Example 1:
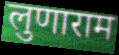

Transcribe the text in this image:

लुणाराम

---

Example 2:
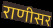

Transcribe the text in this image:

राणीसर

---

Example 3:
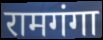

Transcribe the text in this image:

रामगंगा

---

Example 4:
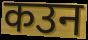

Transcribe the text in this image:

कउन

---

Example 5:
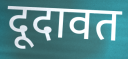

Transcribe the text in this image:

दूदावत